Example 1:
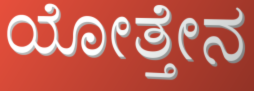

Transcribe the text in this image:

ಯೋತ್ತೇನ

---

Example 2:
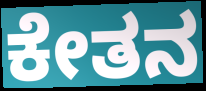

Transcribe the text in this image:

ಕೇತನ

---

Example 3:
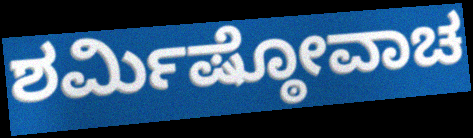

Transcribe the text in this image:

ಶರ್ಮಿಷ್ಠೋವಾಚ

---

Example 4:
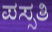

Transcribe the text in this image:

ಪಸ್ಸತಿ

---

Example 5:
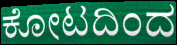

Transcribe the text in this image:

ಕೋಟದಿಂದ